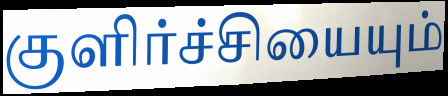
குளிர்ச்சியையும்